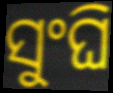
ସୁଂଘି